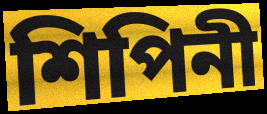
শিপিনী